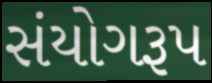
સંયોગરૂપ